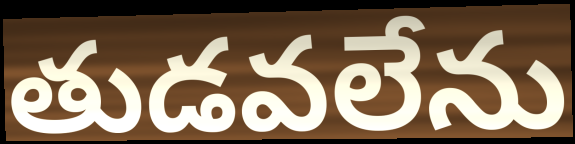
తుడవలేను